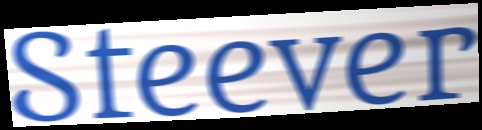
Steever